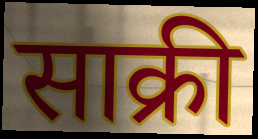
साक्री